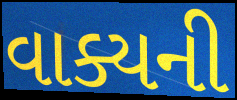
વાક્યની